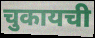
चुकायची